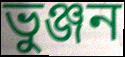
ভুঞ্জন